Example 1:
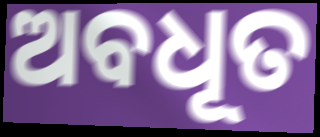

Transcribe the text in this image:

ଅବଧୂତ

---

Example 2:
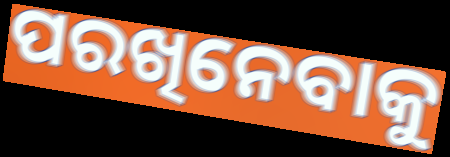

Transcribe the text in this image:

ପରଖିନେବାକୁ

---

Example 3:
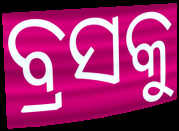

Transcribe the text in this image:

ବ୍ରସକୁ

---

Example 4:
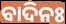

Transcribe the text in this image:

ବାଦିନଃ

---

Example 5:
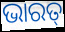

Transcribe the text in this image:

ଭାରତ୍